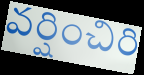
వర్షించిరి